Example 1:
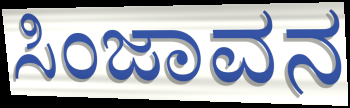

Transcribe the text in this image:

ಸಿಂಜಾವನ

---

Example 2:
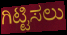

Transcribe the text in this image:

ಗಿಟ್ಟಿಸಲು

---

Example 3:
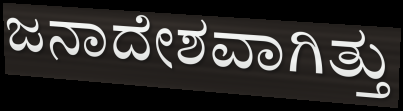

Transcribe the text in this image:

ಜನಾದೇಶವಾಗಿತ್ತು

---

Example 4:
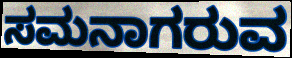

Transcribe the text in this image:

ಸಮನಾಗರುವ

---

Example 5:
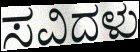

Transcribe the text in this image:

ಸವಿದಳು